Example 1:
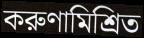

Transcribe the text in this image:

করুণামিশ্রিত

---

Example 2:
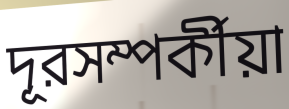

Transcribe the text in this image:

দূরসম্পর্কীয়া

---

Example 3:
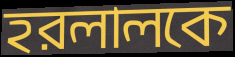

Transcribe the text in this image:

হরলালকে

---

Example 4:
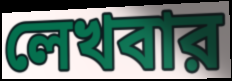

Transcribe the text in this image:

লেখবার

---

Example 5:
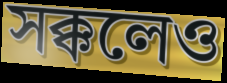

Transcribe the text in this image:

সক্কলেও